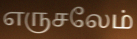
எருசலேம்